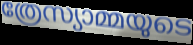
ത്രേസ്യാമ്മയുടെ